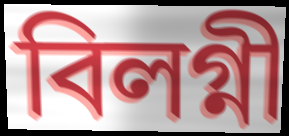
বিলগ্নী